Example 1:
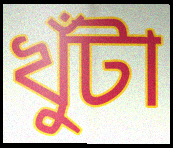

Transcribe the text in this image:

খুঁটা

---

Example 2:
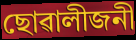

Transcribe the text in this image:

ছোৱালীজনী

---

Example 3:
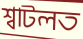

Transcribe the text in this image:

শ্বাটলত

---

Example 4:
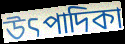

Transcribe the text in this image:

উৎপাদিকা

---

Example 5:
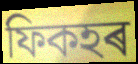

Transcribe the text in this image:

ফিকহৰ